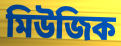
মিউজিক